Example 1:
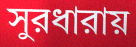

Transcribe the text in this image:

সুরধারায়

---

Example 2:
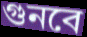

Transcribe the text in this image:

গুনবে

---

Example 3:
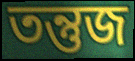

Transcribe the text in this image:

তন্তুজ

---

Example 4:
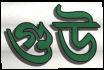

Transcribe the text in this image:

গুউ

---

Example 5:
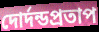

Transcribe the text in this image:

দোর্দন্ডপ্রতাপ